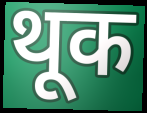
थूक